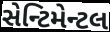
સેન્ટિમેન્ટલ